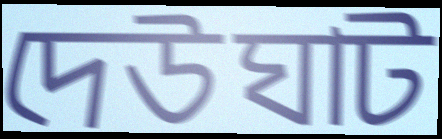
দেউঘাট